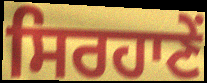
ਸਿਰਹਾਣੇਂ